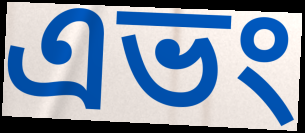
এভং